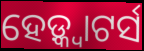
ହେଡ଼୍କ୍ୱାଟର୍ସ